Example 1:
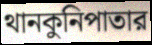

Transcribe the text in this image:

থানকুনিপাতার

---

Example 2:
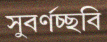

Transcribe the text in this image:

সুবর্ণচ্ছবি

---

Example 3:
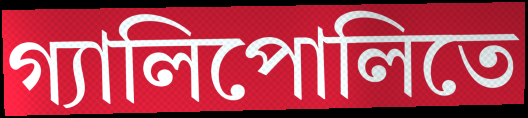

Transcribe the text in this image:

গ্যালিপোলিতে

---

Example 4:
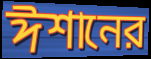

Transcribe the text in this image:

ঈশানের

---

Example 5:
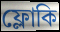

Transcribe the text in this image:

ফ্লোকি